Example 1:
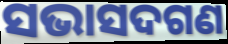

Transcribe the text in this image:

ସଭାସଦଗଣ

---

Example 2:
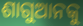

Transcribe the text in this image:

ଶାଗୁଆନକୁ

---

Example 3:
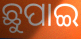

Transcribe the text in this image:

ଛୁପାଇ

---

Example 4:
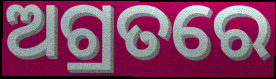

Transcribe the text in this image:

ଅଗ୍ରତରେ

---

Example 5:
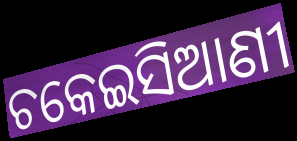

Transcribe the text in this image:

ଚକେଇସିଆଣୀ